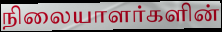
நிலையாளர்களின்